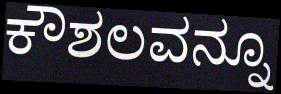
ಕೌಶಲವನ್ನೂ